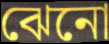
ঝেনো